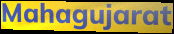
Mahagujarat